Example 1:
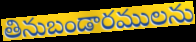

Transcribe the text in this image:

తినుబండారములను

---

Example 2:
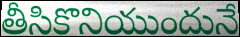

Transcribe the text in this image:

తీసికొనియుందునే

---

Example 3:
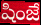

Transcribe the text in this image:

షింజే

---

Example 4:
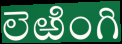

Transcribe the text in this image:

లెఱింగి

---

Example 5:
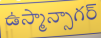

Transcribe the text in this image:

ఉస్మాన్సాగర్